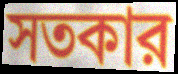
সতকার